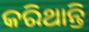
କରିଥାନ୍ତି